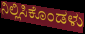
ನಿಲ್ಲಿಸಿಕೊಂಡಳು